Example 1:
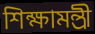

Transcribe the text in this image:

শিক্ষামন্ত্রী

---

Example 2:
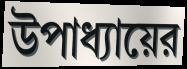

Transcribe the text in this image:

উপাধ্যায়ের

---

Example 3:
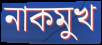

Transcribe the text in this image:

নাকমুখ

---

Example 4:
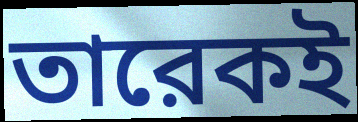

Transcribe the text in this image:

তারেকই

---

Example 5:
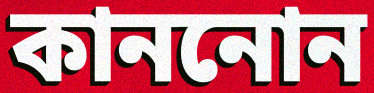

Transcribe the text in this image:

কাননোন